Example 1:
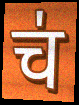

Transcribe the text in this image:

च॑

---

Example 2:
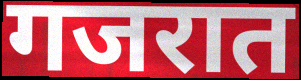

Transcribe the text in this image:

गजरात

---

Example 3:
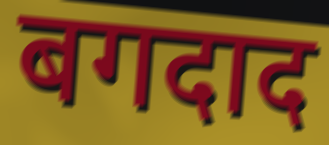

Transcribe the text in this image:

बगदाद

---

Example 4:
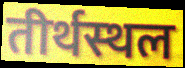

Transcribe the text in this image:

तीर्थस्थल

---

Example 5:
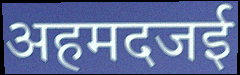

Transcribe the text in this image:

अहमदजई